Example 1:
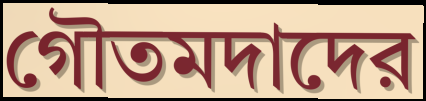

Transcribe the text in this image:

গৌতমদাদের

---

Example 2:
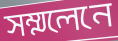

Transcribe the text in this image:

সম্মলেনে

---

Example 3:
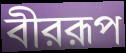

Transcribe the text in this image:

বীররূপ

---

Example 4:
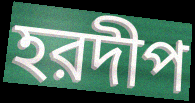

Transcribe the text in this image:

হরদীপ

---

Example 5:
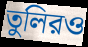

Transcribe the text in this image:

তুলিরও